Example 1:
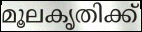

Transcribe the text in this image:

മൂലകൃതിക്ക്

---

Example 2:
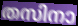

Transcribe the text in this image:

തസിനാ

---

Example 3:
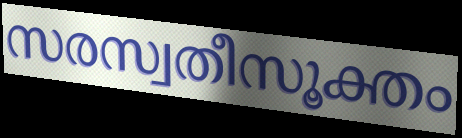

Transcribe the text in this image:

സരസ്വതീസൂക്തം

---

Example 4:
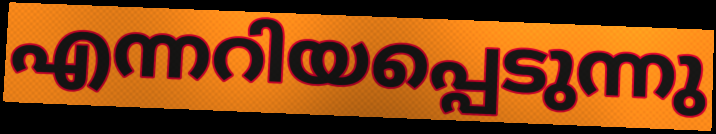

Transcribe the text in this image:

എന്നറിയപ്പെടുന്നു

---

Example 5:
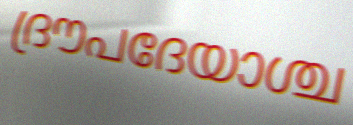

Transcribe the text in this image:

ദ്രൗപദേയാശ്ച